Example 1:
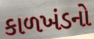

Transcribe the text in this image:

કાળખંડનો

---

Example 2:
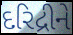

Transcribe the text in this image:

દરિદ્રીને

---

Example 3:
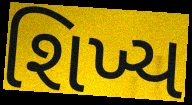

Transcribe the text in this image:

શિખ્ય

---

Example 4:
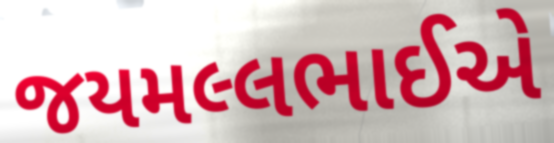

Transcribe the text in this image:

જયમલ્લભાઈએ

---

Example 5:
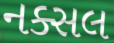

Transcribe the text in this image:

નક્સલ